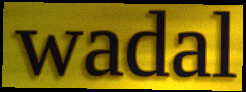
wadal